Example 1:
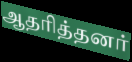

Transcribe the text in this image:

ஆதரித்தனர்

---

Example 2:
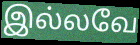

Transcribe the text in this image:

இல்லவே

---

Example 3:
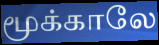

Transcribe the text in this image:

மூக்காலே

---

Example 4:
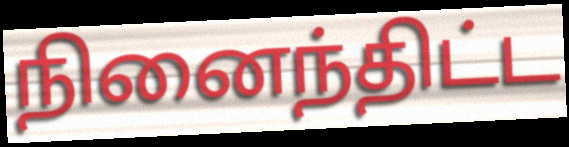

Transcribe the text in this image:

நினைந்திட்ட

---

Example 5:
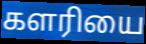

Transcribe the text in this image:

களரியை